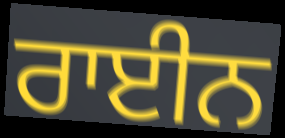
ਰਾਈਨ